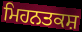
ਮਿਹਨਤਕਸ਼